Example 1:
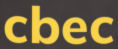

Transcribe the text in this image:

cbec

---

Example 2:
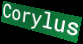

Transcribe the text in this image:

Corylus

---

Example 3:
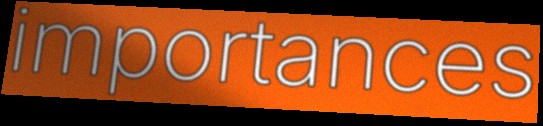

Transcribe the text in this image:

importances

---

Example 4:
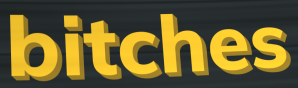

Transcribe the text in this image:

bitches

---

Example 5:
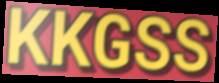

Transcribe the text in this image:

KKGSS